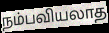
நம்பவியலாத